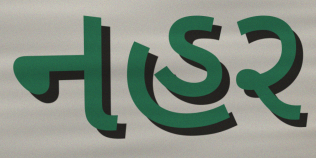
નહર